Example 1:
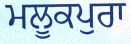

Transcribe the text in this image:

ਮਲੂਕਪੁਰਾ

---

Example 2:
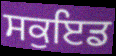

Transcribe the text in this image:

ਸਕੁਇਡ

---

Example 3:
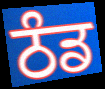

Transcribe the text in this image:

ਠੰਡ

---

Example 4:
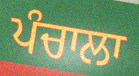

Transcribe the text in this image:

ਪੰਚਾਲਾ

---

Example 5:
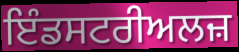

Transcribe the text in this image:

ਇੰਡਸਟਰੀਅਲਜ਼